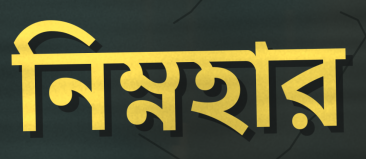
নিম্নহার